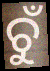
ଚୁଁ